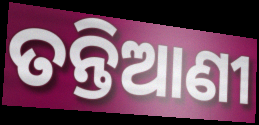
ତନ୍ତିଆଣୀ